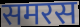
समरस